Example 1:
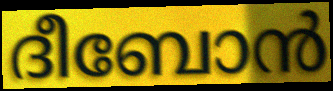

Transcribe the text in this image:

ദീബോൻ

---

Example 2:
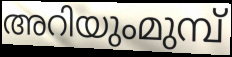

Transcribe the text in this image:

അറിയുംമുമ്പ്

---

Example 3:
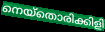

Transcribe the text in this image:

നെയ്തൊരിക്കിളി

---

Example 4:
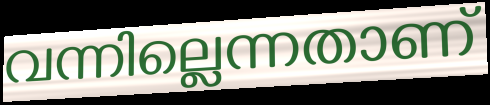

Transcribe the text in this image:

വന്നില്ലെന്നതാണ്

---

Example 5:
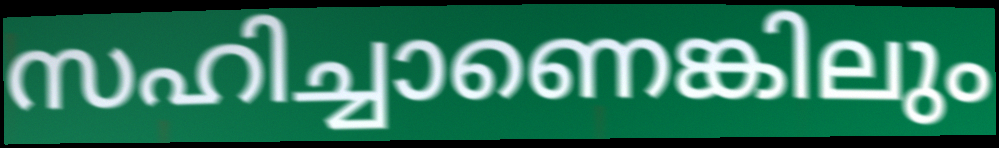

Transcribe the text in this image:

സഹിച്ചാണെങ്കിലും